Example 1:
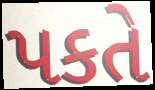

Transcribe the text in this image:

પકતે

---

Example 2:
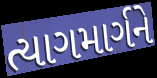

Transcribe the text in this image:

ત્યાગમાર્ગને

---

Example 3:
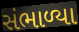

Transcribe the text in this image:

સંભાળ્યા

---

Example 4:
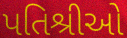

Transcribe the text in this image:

પતિશ્રીઓ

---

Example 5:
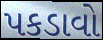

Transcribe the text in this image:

પકડાવો